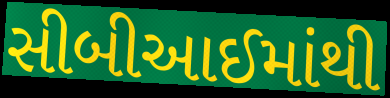
સીબીઆઈમાંથી